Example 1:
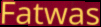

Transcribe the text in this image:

Fatwas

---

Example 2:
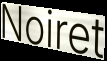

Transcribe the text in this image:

Noiret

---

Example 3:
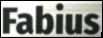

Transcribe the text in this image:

Fabius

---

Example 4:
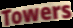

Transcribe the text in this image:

Towers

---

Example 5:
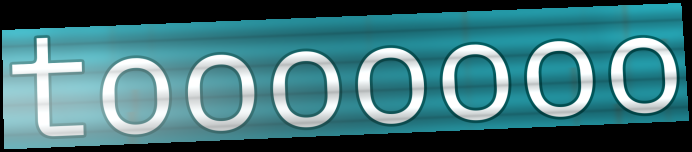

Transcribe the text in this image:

tooooooo